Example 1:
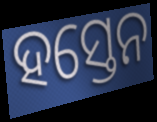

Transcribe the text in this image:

ହସ୍ତେନ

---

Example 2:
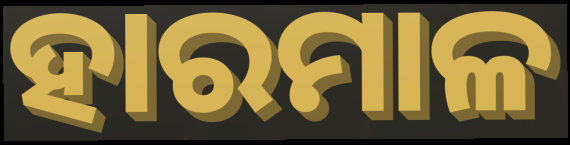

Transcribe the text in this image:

ହାରମାଳ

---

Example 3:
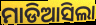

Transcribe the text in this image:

ମାଡିଆସିଲା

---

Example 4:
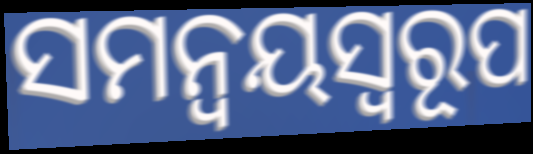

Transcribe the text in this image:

ସମନ୍ୱୟସ୍ୱରୂପ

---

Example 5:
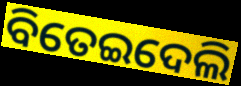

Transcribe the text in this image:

ବିତେଇଦେଲି